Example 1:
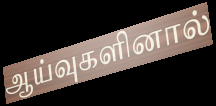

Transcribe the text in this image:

ஆய்வுகளினால்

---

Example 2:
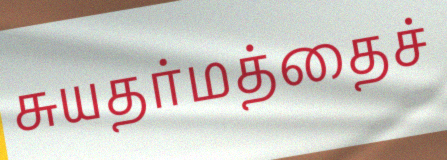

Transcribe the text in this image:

சுயதர்மத்தைச்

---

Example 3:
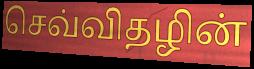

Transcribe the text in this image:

செவ்விதழின்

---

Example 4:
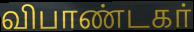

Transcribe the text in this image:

விபாண்டகர்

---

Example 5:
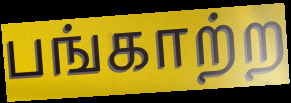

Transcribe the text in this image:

பங்காற்ற